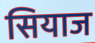
सियाज